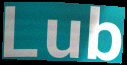
Lub